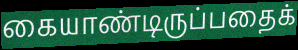
கையாண்டிருப்பதைக்